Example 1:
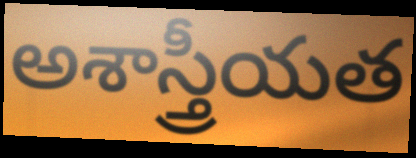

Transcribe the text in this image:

అశాస్త్రీయత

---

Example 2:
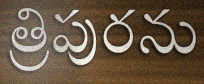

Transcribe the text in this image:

త్రిపురను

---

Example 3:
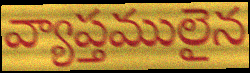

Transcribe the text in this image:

వ్యాప్తములైన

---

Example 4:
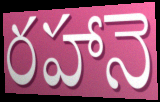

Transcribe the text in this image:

రహానె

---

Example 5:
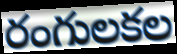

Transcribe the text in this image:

రంగులకల